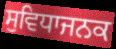
ਸੁਵਿਧਾਜਨਕ